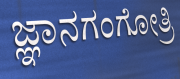
ಜ್ಞಾನಗಂಗೋತ್ರಿ